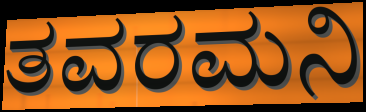
ತವರಮನಿ